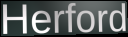
Herford